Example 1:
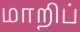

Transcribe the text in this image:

மாறிப்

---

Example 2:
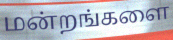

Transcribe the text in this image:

மன்றங்களை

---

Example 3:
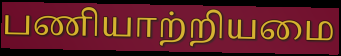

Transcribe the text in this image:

பணியாற்றியமை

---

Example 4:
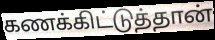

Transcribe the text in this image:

கணக்கிட்டுத்தான்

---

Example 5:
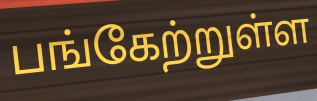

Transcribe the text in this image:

பங்கேற்றுள்ள